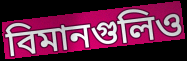
বিমানগুলিও